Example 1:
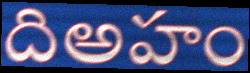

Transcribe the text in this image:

దిఅహం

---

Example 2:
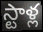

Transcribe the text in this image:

స్టాళ్ల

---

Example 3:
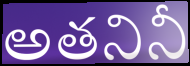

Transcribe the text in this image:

అతనినీ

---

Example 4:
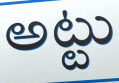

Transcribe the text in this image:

అట్టు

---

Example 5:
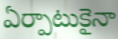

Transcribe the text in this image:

ఏర్పాటుకైనా